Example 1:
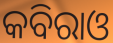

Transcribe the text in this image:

କବିରାଓ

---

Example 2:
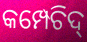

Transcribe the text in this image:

କମ୍ପେଚିଦ୍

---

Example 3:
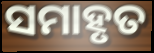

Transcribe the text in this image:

ସମାହୃତ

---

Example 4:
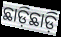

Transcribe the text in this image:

ଛାଡ଼ିଛାଡ଼ି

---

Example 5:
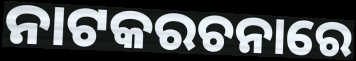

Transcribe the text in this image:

ନାଟକରଚନାରେ